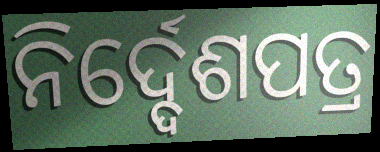
ନିର୍ଦ୍ଦେଶପତ୍ର